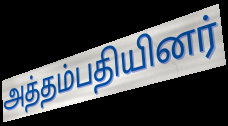
அத்தம்பதியினர்